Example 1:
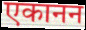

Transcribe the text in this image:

एकानन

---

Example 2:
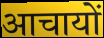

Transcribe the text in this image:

आचायों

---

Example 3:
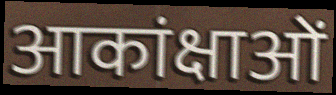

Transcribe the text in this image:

आकांक्षाओं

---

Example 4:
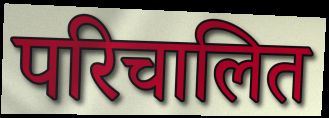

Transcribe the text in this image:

परिचालित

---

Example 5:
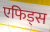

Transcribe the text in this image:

एफिड्स